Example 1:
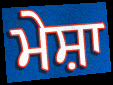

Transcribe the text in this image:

ਮੇਸ਼ਾ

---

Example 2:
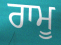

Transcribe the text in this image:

ਰਾਮੂ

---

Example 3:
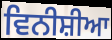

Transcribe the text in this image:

ਵਿਨੀਸ਼ੀਆ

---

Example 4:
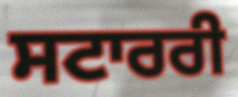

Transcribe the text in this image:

ਸਟਾਰਰੀ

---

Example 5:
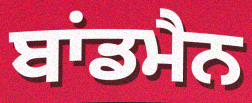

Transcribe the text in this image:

ਬਾਂਡਮੈਨ